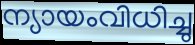
ന്യായംവിധിച്ചു